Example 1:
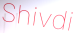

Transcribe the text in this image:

Shivdi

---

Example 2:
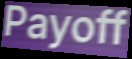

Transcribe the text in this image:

Payoff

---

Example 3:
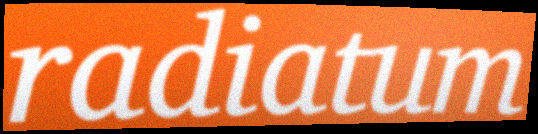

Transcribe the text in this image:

radiatum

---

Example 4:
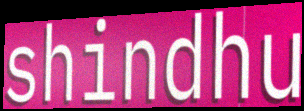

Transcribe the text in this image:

shindhu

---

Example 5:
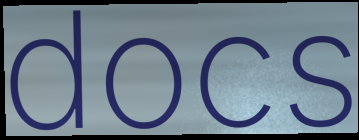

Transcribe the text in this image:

docs